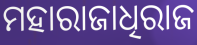
ମହାରାଜାଧିରାଜ